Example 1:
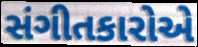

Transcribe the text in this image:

સંગીતકારોએ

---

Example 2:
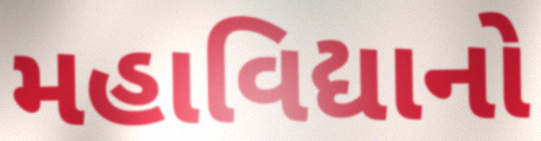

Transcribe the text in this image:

મહાવિદ્યાનો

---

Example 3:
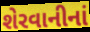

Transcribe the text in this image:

શેરવાનીનાં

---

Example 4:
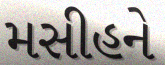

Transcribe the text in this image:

મસીહને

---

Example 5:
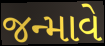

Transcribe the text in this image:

જન્માવે